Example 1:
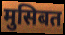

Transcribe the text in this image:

मुसिबत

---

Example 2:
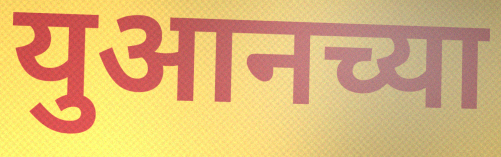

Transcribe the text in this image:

युआनच्या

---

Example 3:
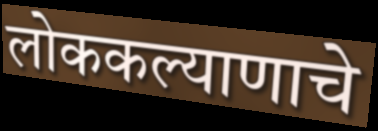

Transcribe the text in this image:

लोककल्याणाचे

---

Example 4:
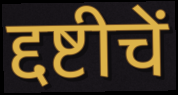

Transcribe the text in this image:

द्दष्टीचें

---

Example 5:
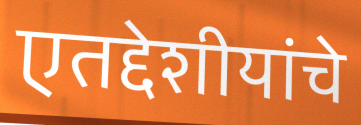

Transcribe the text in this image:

एतद्देशीयांचे